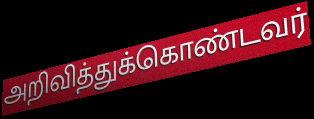
அறிவித்துக்கொண்டவர்